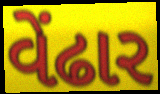
વેંઢાર